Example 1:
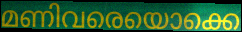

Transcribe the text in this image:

മണിവരെയൊക്കെ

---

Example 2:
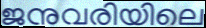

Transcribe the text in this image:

ജനുവരിയിലെ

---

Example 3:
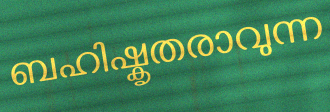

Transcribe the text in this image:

ബഹിഷ്കൃതരാവുന്ന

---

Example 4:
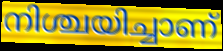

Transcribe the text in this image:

നിശ്ചയിച്ചാണ്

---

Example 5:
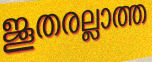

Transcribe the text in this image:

ജൂതരല്ലാത്ത